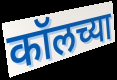
कॉलच्या